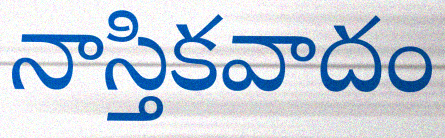
నాస్తికవాదం